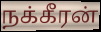
நக்கீரன்